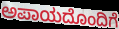
ಅಪಾಯದೊಂದಿಗೆ